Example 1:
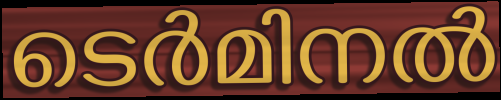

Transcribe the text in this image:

ടെർമിനൽ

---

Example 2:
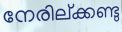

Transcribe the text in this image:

നേരില്ക്കണ്ടു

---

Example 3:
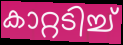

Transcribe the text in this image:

കാറ്റടിച്ച്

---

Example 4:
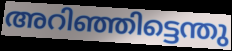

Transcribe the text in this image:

അറിഞ്ഞിട്ടെന്തു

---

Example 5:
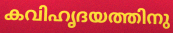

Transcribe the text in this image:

കവിഹൃദയത്തിനു